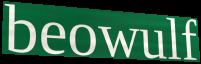
beowulf